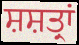
ਸ਼ਸ਼ਤ੍ਰਾਂ